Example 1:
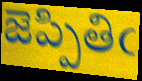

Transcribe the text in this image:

జెప్పితిఁ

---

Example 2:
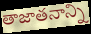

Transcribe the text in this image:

తాజాతనాన్ని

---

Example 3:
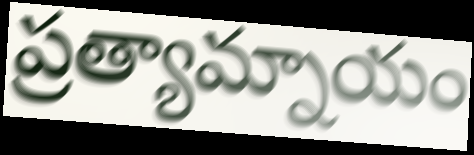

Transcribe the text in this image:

ప్రత్యామ్నాయం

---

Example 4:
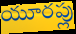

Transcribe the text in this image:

యూరప్లు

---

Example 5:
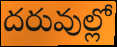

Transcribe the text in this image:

దరువుల్లో